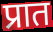
प्रात